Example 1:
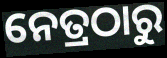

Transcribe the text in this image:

ନେତ୍ରଠାରୁ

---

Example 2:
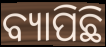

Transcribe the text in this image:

ବ୍ୟାପିଛି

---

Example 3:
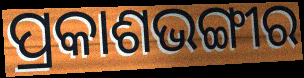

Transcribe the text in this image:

ପ୍ରକାଶଭଙ୍ଗୀର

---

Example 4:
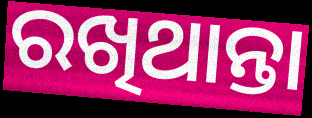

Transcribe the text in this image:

ରଖିଥାନ୍ତା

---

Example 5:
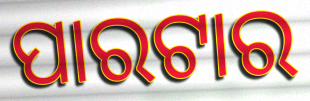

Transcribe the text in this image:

ପାରଟାର